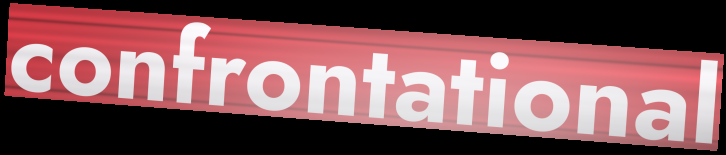
confrontational